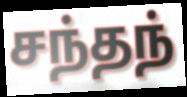
சந்தந்